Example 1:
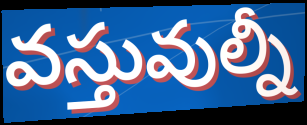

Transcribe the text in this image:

వస్తువుల్నీ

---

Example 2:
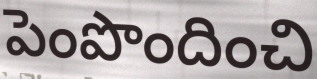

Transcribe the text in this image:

పెంపొందించి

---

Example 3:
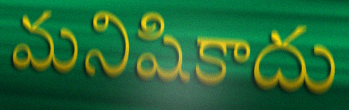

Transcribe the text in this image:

మనిషికాదు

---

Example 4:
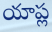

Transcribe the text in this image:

యాప్ల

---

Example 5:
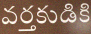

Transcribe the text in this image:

వర్తకుడికి